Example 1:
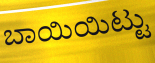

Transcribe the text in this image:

ಬಾಯಿಯಿಟ್ಟು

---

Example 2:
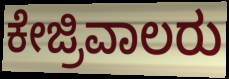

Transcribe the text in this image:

ಕೇಜ್ರಿವಾಲರು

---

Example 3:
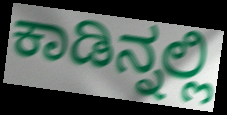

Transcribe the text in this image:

ಕಾಡಿನ್ನಲ್ಲಿ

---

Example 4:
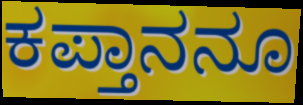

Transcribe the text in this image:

ಕಪ್ತಾನನೂ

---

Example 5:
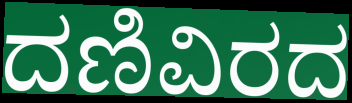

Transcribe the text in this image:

ದಣಿವಿರದ